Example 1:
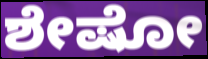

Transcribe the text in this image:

ಶೇಷೋ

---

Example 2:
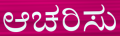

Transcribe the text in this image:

ಆಚರಿಸು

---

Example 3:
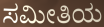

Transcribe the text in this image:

ಸಮೀತಿಯ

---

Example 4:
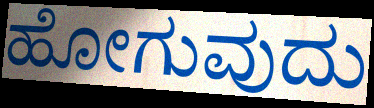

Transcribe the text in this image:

ಹೋಗುವುದು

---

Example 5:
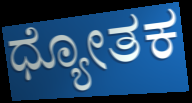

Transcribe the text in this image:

ಧ್ಯೋತಕ